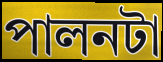
পালনটা